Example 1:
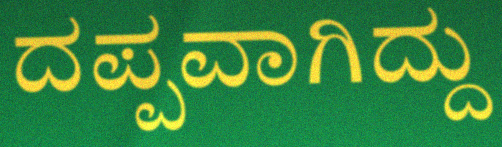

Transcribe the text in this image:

ದಪ್ಪವಾಗಿದ್ದು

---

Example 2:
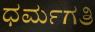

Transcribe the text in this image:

ಧರ್ಮಗತಿ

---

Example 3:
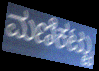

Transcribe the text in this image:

ಮಣಿಕಟ್ಟು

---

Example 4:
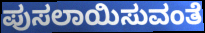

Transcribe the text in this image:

ಪುಸಲಾಯಿಸುವಂತೆ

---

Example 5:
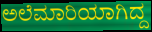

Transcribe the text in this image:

ಅಲೆಮಾರಿಯಾಗಿದ್ದ